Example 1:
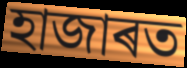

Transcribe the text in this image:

হাজাৰত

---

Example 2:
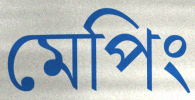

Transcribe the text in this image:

মেপিং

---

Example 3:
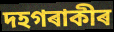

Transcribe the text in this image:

দহগৰাকীৰ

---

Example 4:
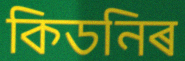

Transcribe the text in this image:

কিডনিৰ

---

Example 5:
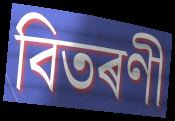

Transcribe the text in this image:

বিতৰণী